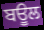
ਬਊਲ